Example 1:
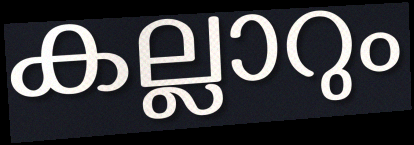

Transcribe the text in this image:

കല്ലാറും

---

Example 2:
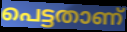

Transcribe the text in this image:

പെട്ടതാണ്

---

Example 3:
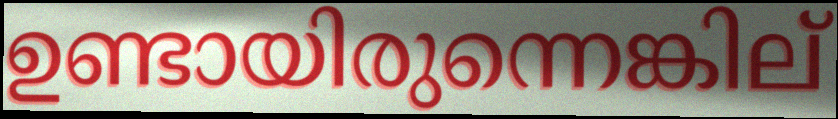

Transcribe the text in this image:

ഉണ്ടായിരുന്നെങ്കില്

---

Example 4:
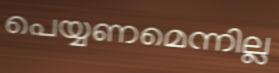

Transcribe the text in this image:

പെയ്യണമെന്നില്ല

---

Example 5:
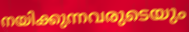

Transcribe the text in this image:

നയിക്കുന്നവരുടെയും